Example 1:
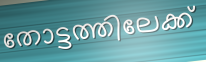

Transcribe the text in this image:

തോട്ടത്തിലേക്ക്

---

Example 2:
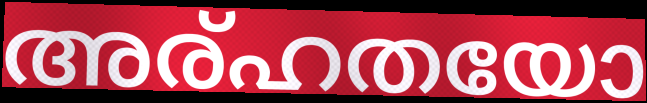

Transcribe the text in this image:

അര്ഹതയോ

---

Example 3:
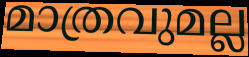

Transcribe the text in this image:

മാത്രവുമല്ല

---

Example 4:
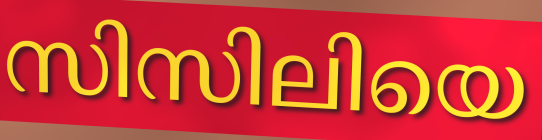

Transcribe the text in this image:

സിസിലിയെ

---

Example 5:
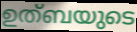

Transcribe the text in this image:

ഉത്ബയുടെ